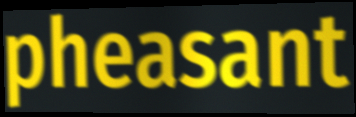
pheasant